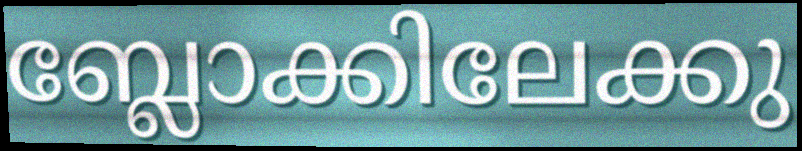
ബ്ലോക്കിലേക്കു